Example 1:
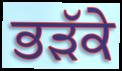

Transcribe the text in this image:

ਭੜੱਕੇ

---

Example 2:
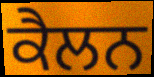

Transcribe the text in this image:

ਕੈਲਨ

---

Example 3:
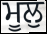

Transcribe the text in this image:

ਮੂਲੁ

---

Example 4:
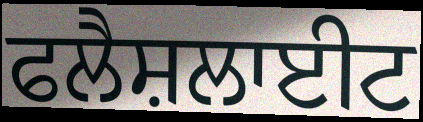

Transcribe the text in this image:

ਫਲੈਸ਼ਲਾਈਟ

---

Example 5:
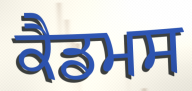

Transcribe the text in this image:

ਕੈਡਮਸ